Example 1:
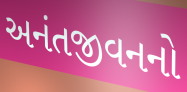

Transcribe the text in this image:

અનંતજીવનનો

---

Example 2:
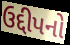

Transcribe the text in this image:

ઉદ્દીપનો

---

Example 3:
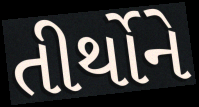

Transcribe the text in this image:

તીર્થોને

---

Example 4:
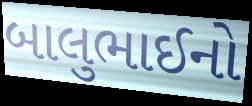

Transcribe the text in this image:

બાલુભાઈનો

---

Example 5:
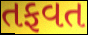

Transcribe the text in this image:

તફવત